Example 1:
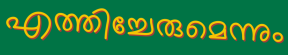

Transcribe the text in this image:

എത്തിച്ചേരുമെന്നും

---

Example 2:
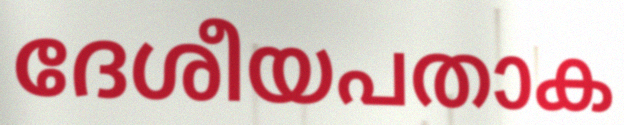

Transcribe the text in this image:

ദേശീയപതാക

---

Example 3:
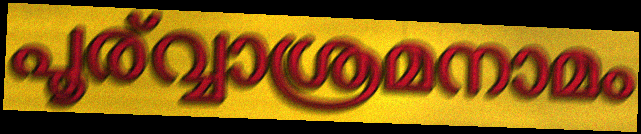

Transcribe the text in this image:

പൂര്വ്വാശ്രമനാമം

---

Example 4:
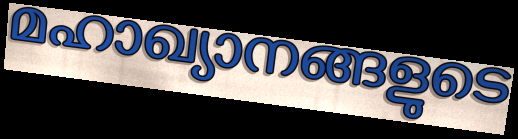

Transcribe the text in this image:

മഹാഖ്യാനങ്ങളുടെ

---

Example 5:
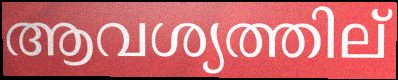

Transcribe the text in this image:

ആവശ്യത്തില്